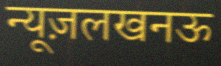
न्यूज़लखनऊ